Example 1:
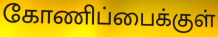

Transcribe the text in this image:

கோணிப்பைக்குள்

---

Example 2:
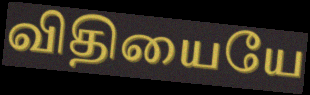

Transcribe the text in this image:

விதியையே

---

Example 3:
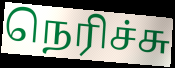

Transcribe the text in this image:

நெரிச்சு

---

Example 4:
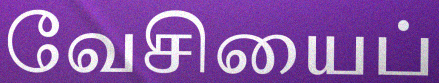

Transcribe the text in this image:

வேசியைப்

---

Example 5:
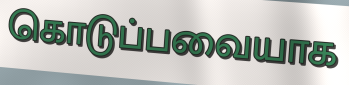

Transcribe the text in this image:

கொடுப்பவையாக